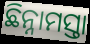
ଛିନ୍ନାମସ୍ତା